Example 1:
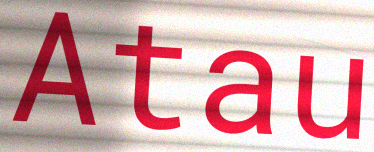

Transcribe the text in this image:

Atau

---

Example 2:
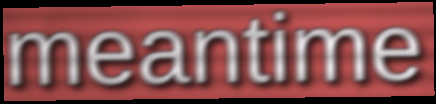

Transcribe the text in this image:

meantime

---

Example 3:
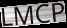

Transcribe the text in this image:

LMCP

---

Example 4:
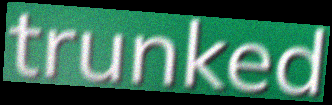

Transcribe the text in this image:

trunked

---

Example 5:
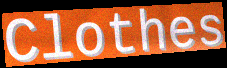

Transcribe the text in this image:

Clothes